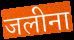
जलीना